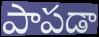
పాపడా